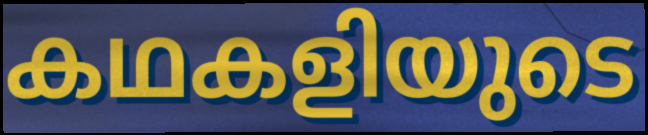
കഥകളിയുടെ